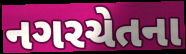
નગરચેતના